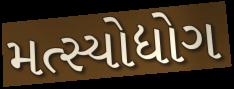
મત્સ્યોદ્યોગ